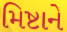
મિષ્ટાને